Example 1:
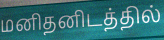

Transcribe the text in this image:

மனிதனிடத்தில்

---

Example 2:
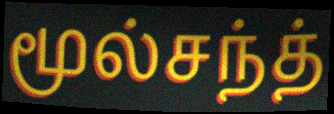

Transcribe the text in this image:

மூல்சந்த்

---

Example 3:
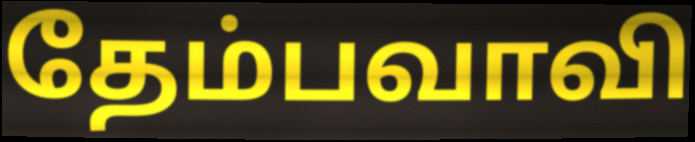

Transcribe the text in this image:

தேம்பவாவி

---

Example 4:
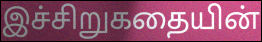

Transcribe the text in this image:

இச்சிறுகதையின்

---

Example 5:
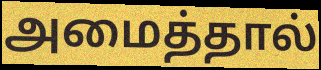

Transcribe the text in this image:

அமைத்தால்